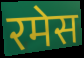
रमेस